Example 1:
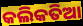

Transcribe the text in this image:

କଲିକତିଆ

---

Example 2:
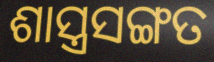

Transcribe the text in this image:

ଶାସ୍ତ୍ରସଙ୍ଗତ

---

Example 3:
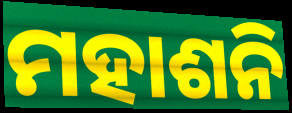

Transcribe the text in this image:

ମହାଶନି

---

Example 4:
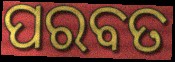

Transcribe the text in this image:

ପରବତ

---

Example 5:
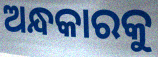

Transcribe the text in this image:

ଅନ୍ଧକାରକୁ